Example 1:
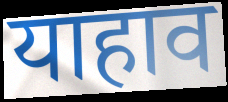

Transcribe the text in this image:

याहाव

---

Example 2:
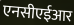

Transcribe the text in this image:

एनसीएईआर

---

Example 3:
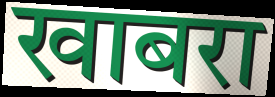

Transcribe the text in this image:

खाबरा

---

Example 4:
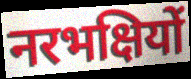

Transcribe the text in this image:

नरभक्षियों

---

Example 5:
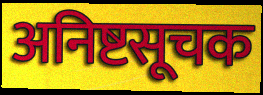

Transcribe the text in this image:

अनिष्टसूचक